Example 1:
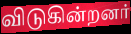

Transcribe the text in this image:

விடுகின்றனர்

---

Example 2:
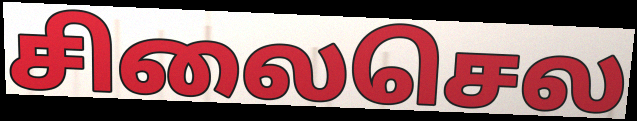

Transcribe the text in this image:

சிலைசெல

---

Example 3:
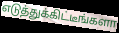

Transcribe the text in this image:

எடுத்துக்கிட்டீங்களா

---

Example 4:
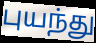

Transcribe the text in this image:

புயந்து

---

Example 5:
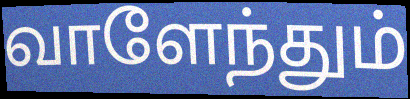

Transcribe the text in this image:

வாளேந்தும்